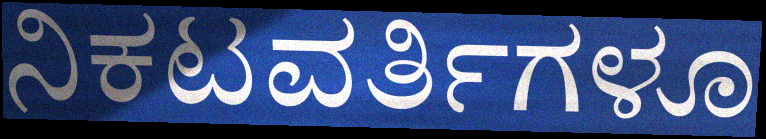
ನಿಕಟವರ್ತಿಗಳೂ